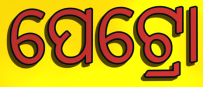
ପେଟ୍ରୋ